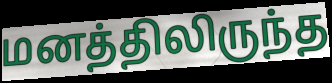
மனத்திலிருந்த